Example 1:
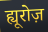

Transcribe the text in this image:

ह्यूरोज़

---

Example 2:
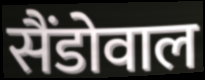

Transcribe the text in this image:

सैंडोवाल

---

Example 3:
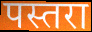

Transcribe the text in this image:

पस्तरा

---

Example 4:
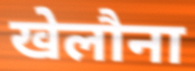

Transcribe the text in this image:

खेलौना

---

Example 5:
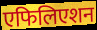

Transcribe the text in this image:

एफिलिएशन